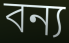
বন্য